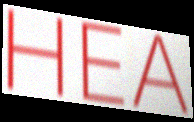
HEA